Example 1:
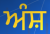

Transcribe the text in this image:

ਅੰਸ਼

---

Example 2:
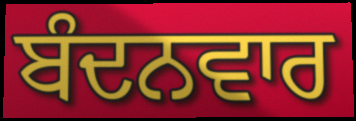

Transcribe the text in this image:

ਬੰਦਨਵਾਰ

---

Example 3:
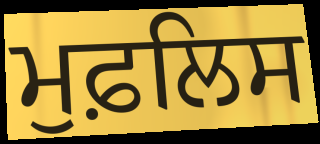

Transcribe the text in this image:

ਮੁਫ਼ਲਿਸ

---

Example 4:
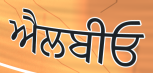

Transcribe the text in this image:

ਐਲਬੀਓ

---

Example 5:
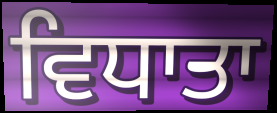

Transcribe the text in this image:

ਵਿਧਾਤਾ